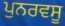
ਪੁਨਰਵਸੂ